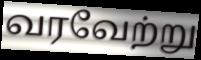
வரவேற்று